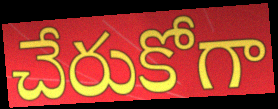
చేరుకోగా